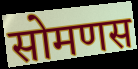
सोमणस